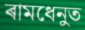
ৰামধেনুত